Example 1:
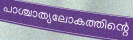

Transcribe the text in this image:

പാശ്ചാത്യലോകത്തിന്റെ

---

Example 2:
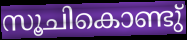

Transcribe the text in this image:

സൂചികൊണ്ടു്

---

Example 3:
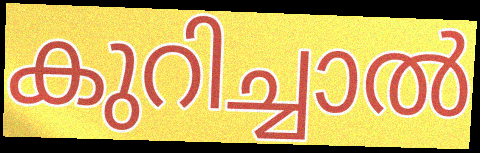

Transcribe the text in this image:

കുറിച്ചാൽ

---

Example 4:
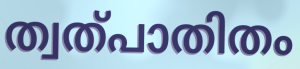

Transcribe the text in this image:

ത്വത്പാതിതം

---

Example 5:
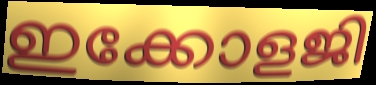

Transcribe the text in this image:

ഇക്കോളജി